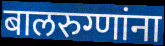
बालरुग्णांना